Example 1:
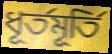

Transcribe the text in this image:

ধূর্তমূর্তি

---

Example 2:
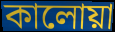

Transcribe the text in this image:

কালোয়া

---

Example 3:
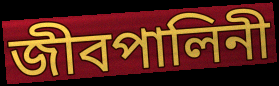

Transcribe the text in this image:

জীবপালিনী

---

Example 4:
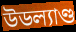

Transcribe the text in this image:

উডল্যাণ্ড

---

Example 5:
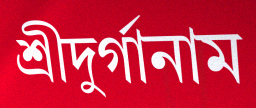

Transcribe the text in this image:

শ্রীদুর্গানাম